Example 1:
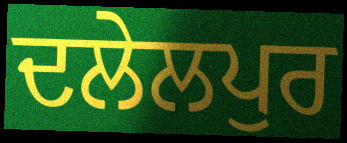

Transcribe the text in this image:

ਦਲੇਲਪੁਰ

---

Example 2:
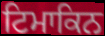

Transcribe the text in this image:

ਟਿਮਾਕਿਨ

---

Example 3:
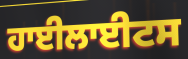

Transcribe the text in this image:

ਹਾਈਲਾਈਟਸ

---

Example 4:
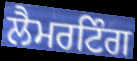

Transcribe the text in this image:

ਲੈਮਰਟਿੰਗ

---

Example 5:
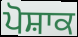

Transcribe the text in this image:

ਪੋਸ਼ਾਕ